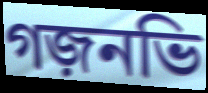
গজ়নভি